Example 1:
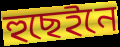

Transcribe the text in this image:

হুছেইনে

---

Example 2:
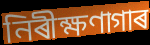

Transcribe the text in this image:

নিৰীক্ষণাগাৰ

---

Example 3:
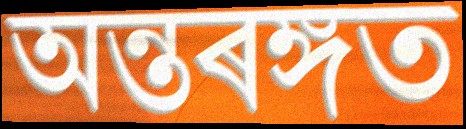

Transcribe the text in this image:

অন্তৰঙ্গত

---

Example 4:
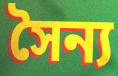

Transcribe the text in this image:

সৈন্য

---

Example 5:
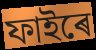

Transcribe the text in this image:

ফাইৰে